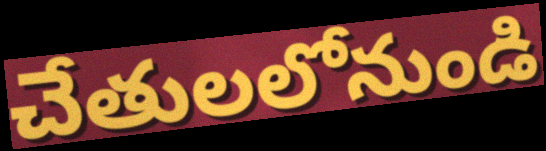
చేతులలోనుండి